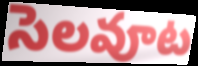
సెలవూట